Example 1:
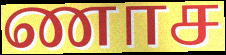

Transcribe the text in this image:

ணாச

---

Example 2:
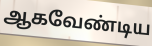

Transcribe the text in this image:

ஆகவேண்டிய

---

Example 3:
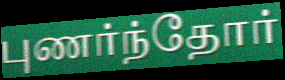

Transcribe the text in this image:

புணர்ந்தோர்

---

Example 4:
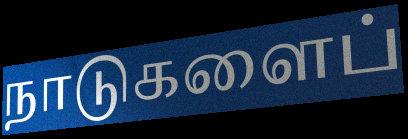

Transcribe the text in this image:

நாடுகளைப்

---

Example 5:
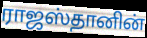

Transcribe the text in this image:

ராஜஸ்தானின்